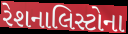
રેશનાલિસ્ટોના